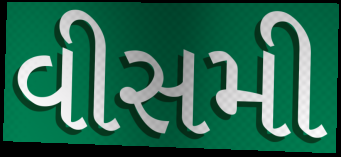
વીસમી